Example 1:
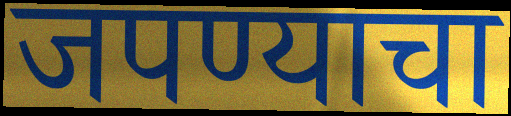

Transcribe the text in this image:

जपण्याचा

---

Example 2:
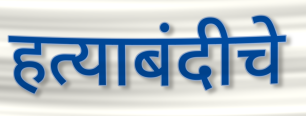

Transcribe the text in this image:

हत्याबंदीचे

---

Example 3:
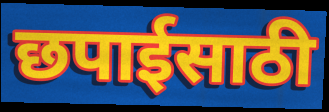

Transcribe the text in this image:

छपाईसाठी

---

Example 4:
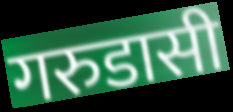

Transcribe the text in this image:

गरुडासी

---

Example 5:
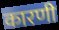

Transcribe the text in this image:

कारणी